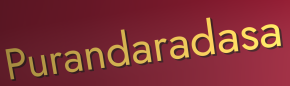
Purandaradasa